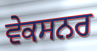
ਵੇਕਸਨਰ